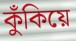
কুঁকিয়ে